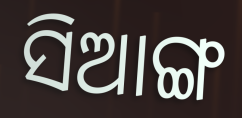
ସିଆଙ୍ଗ